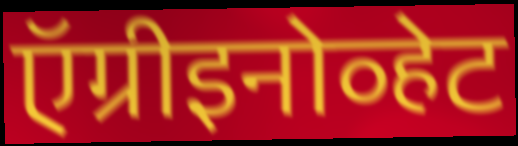
ऍग्रीइनोव्हेट